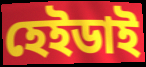
হেইডাই